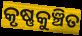
କୃଷ୍ଣକୁଞ୍ଚିତ